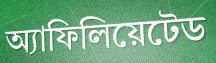
অ্যাফিলিয়েটেড